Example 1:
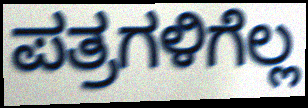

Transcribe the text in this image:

ಪತ್ರಗಳಿಗೆಲ್ಲ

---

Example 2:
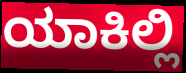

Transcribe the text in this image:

ಯಾಕಿಲ್ಲಿ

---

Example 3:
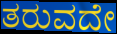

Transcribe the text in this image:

ತರುವದೇ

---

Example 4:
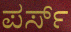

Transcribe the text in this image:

ಪರ್ಸ್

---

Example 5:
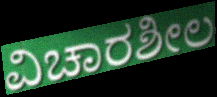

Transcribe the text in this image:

ವಿಚಾರಶೀಲ